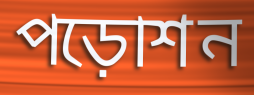
পড়োশন